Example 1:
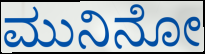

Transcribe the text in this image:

ಮುನಿನೋ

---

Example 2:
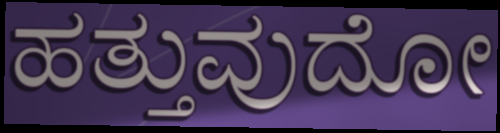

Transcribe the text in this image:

ಹತ್ತುವುದೋ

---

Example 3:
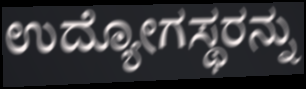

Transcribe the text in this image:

ಉದ್ಯೋಗಸ್ಥರನ್ನು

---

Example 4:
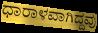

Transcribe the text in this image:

ಧಾರಾಳವಾಗಿದ್ದವು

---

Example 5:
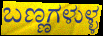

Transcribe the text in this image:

ಬಣ್ಣಗಳುಳ್ಳ